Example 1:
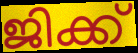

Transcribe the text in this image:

ജിക്ക്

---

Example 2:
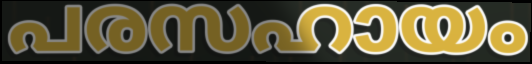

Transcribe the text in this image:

പരസഹായം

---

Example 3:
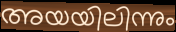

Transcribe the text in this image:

അയയിലിന്നും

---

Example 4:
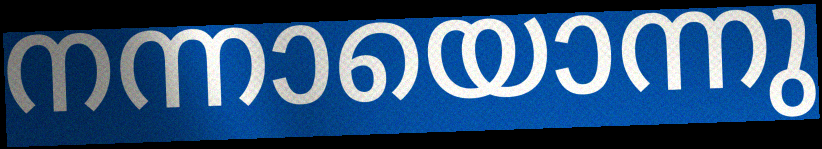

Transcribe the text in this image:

നന്നായൊന്നു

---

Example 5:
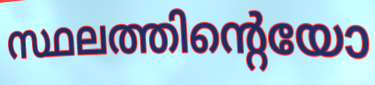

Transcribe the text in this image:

സ്ഥലത്തിന്റെയോ